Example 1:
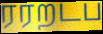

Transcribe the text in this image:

ரரறடப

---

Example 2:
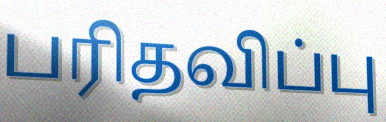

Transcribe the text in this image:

பரிதவிப்பு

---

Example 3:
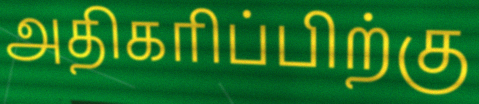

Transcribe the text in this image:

அதிகரிப்பிற்கு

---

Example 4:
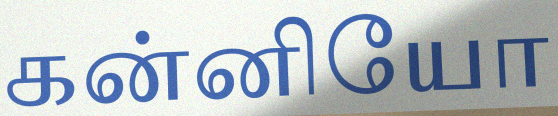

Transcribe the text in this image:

கன்னியோ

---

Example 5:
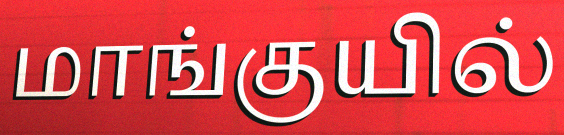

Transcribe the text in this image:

மாங்குயில்